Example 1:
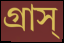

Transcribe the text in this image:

গ্রাস্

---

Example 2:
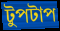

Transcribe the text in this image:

টুপটাপ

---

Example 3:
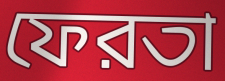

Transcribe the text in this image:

ফেরতা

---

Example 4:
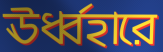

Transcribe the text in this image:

ঊর্ধ্বহারে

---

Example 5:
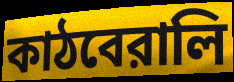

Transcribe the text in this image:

কাঠবেরালি